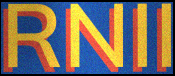
RNII